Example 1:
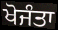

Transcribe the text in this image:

ਖੋਜੰਤਾ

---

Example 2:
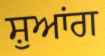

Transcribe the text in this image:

ਸ਼ੁਆਂਗ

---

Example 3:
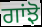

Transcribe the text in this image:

ਗਾਂਝੋ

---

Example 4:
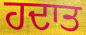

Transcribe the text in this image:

ਹਦਾਤ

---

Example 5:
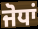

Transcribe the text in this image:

ਜੋਧਾਂ